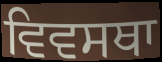
ਵਿਵਸਥਾ